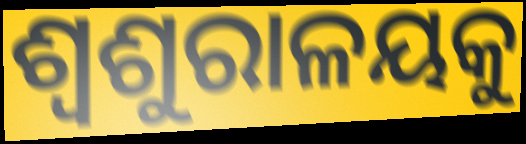
ଶ୍ୱଶୁରାଳୟକୁ